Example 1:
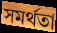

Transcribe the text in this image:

সমর্থতা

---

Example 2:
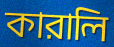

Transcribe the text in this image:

কারালি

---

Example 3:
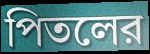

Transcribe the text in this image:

পিতলের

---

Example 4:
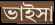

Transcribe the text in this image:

ভাইসা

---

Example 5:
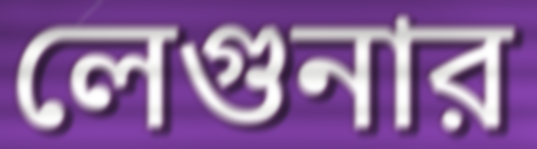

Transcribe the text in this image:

লেগুনার